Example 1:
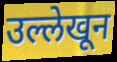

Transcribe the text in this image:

उल्लेखून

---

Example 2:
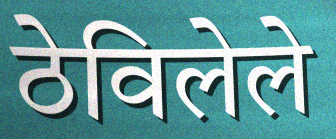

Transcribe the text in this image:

ठेविलेले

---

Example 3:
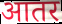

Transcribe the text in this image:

आतर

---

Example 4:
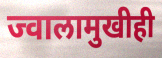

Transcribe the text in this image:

ज्वालामुखीही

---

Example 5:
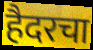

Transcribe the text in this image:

हैदरचा